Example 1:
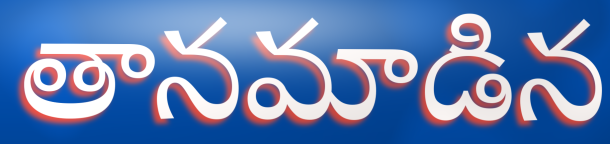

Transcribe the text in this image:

తానమాడిన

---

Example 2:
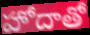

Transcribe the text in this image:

హోదాతో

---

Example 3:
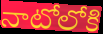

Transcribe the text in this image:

నాటోలోకి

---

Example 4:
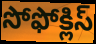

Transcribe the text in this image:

సోఫోక్లిస్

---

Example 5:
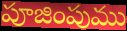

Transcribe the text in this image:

పూజింపుము